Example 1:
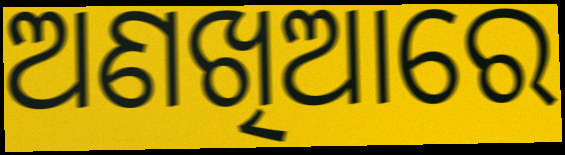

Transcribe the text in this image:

ଅଣଖିଆରେ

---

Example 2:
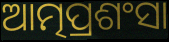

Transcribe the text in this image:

ଆତ୍ମପ୍ରଶଂସା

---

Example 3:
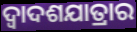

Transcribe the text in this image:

ଦ୍ୱାଦଶଯାତ୍ରାର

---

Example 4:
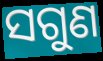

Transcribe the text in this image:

ସଗୁଣ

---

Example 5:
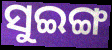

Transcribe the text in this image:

ସୁଇଙ୍ଗ